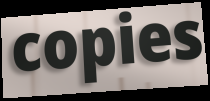
copies